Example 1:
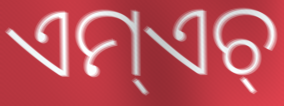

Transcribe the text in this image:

ଏମ୍ଏଚ୍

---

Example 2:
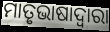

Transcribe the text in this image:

ମାତୃଭାଷାଦ୍ୱାରା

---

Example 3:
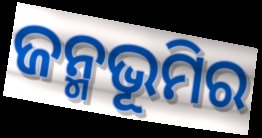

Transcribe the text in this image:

ଜନ୍ମଭୂମିର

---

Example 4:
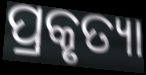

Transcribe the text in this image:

ପ୍ରକୃତ୍ୟା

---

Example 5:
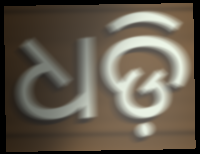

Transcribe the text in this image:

ଧଡ଼ି